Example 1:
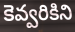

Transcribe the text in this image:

కెవ్వరికిని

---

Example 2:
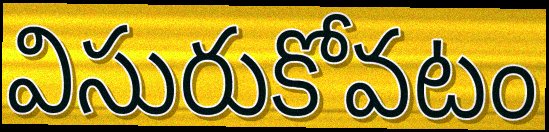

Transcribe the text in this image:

విసురుకోవటం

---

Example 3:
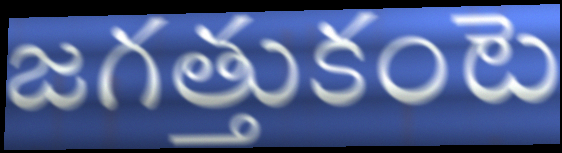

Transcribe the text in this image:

జగత్తుకంటె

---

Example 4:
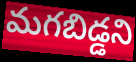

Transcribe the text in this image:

మగబిడ్డని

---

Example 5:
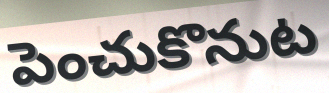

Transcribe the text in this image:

పెంచుకొనుట